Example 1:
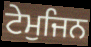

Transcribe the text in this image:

ਟੇਮੁਜਿਨ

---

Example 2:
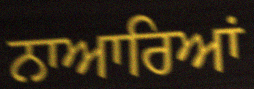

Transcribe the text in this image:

ਨਾਆਰਿਆਂ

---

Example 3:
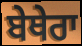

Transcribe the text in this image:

ਬੇਥੇਰਾ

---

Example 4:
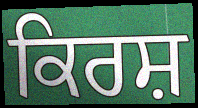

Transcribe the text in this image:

ਕਿਰਸ਼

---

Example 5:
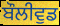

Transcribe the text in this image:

ਬੌਲੀਵੁਡ